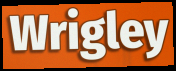
Wrigley